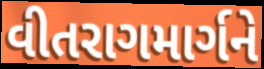
વીતરાગમાર્ગને